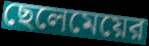
ছেলেমেয়ের